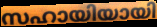
സഹായിയായി